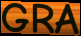
GRA